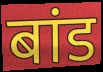
बांड